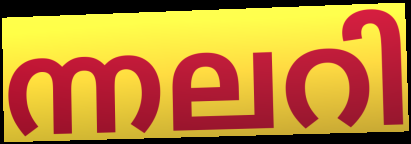
ന്നലറി